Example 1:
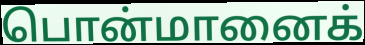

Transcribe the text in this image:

பொன்மானைக்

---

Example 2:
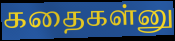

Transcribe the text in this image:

கதைகள்னு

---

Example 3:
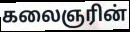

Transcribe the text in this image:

கலைஞரின்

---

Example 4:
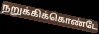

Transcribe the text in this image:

நறுக்கிக்கொண்டே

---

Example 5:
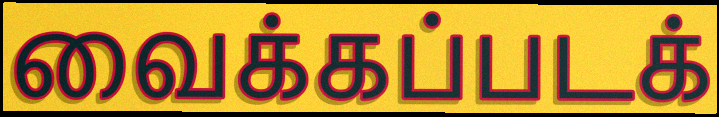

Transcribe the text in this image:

வைக்கப்படக்